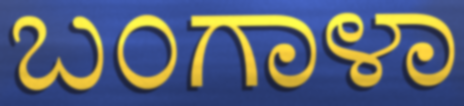
ಬಂಗಾಳಾ